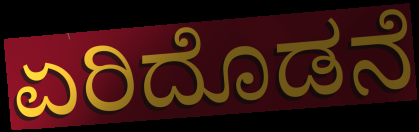
ಏರಿದೊಡನೆ